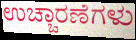
ಉಚ್ಚಾರಣೆಗಳು